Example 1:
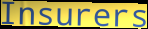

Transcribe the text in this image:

Insurers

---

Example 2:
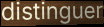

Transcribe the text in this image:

distinguer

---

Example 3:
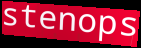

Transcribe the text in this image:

stenops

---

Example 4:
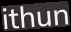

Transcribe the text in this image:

ithun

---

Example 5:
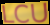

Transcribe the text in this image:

LCU